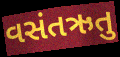
વસંતઋતુ